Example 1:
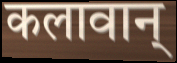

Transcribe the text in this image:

कलावान्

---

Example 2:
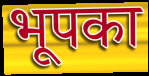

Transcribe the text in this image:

भूपका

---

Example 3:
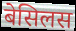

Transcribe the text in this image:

बेसिलस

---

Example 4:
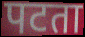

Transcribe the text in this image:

पटता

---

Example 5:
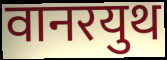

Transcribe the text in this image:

वानरयुथ